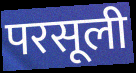
परसूली